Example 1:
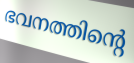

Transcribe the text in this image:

ഭവനത്തിന്റെ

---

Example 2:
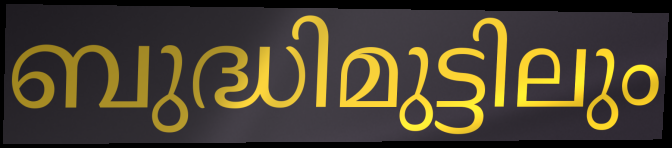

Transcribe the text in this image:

ബുദ്ധിമുട്ടിലും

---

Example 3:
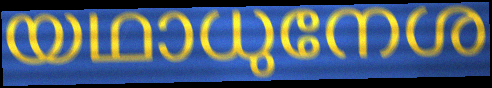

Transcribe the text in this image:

യഥാധുനേശ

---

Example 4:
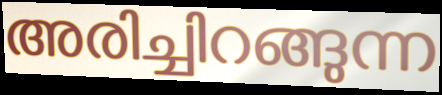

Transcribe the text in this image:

അരിച്ചിറങ്ങുന്ന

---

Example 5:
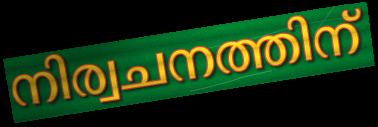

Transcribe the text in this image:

നിര്വചനത്തിന്